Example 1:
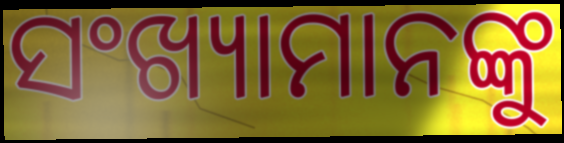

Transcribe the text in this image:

ସଂଖ୍ୟାମାନଙ୍କୁ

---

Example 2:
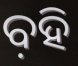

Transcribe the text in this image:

ବ଼ହି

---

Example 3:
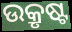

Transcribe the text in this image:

ଉକ୍ରୃଷ୍ଟ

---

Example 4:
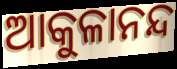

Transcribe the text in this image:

ଆକୁଳାନନ୍ଦ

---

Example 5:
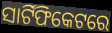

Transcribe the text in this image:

ସାର୍ଟିଫିକେଟରେ